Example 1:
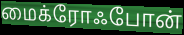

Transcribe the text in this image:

மைக்ரோஃபோன்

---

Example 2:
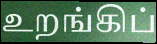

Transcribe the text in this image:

உறங்கிப்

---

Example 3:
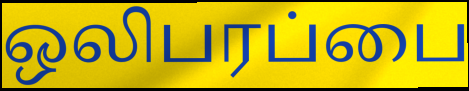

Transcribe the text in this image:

ஒலிபரப்பை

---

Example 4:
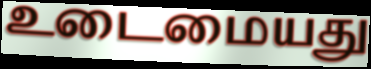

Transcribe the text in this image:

உடைமையது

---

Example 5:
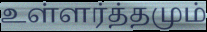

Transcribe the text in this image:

உள்ளர்த்தமும்